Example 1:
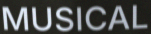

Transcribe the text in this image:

MUSICAL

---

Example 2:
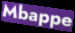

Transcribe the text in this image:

Mbappe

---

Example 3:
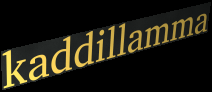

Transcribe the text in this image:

kaddillamma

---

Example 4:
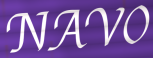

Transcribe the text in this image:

NAVO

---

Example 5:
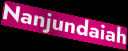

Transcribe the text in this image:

Nanjundaiah